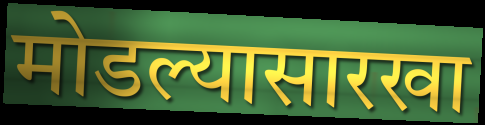
मोडल्यासारखा